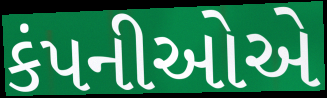
કંપનીઓએ